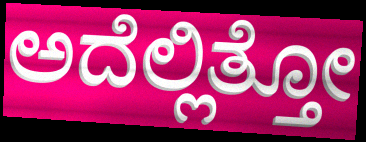
ಅದೆಲ್ಲಿತ್ತೋ